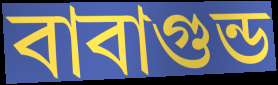
বাবাগুন্ড